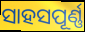
ସାହସପୂର୍ଣ୍ଣ